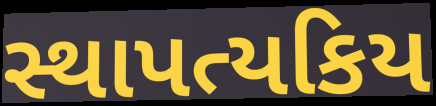
સ્થાપત્યકિય